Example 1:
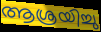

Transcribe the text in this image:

ആശ്രയിച്ചു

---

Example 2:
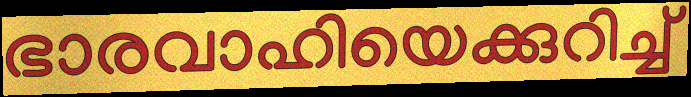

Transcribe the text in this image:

ഭാരവാഹിയെക്കുറിച്ച്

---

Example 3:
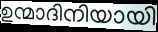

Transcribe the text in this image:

ഉന്മാദിനിയായി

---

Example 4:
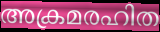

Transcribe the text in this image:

അക്രമരഹിത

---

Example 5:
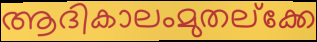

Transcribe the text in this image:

ആദികാലംമുതല്ക്കേ